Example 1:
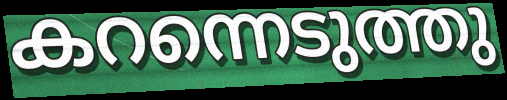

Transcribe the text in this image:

കറന്നെടുത്തു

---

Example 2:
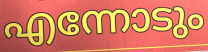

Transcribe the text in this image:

എന്നോടും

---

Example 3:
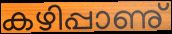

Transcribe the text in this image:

കഴിപ്പാണു്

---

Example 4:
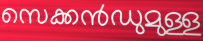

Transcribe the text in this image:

സെക്കൻഡുമുള്ള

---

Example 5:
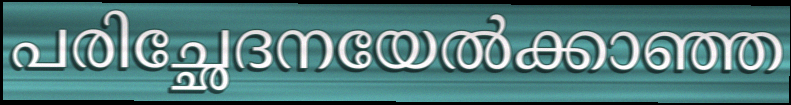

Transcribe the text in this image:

പരിച്ഛേദനയേൽക്കാഞ്ഞ